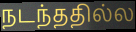
நடந்ததில்ல